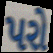
પરો